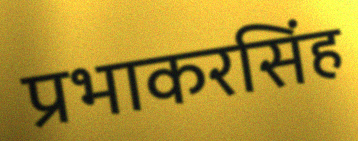
प्रभाकरसिंह